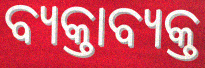
ବ୍ୟକ୍ତାବ୍ୟକ୍ତ